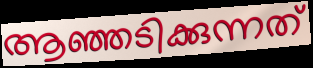
ആഞ്ഞടിക്കുന്നത്